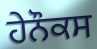
ਹੇਨੌਕਸ